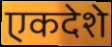
एकदेशे